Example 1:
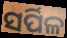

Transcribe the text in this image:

ସର୍ପିଳ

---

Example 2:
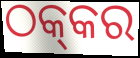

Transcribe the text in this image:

ଠକ୍‍କର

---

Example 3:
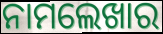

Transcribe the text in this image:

ନାମଲେଖାର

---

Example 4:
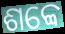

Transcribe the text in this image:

ଶବ୍ବେ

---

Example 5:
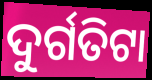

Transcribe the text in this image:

ଦୁର୍ଗତିଟା